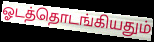
ஓடத்தொடங்கியதும்